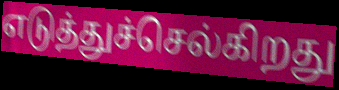
எடுத்துச்செல்கிறது